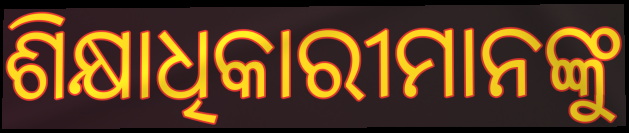
ଶିକ୍ଷାଧିକାରୀମାନଙ୍କୁ